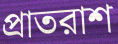
প্রাতরাশ